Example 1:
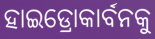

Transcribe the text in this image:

ହାଇଡ୍ରୋକାର୍ବନକୁ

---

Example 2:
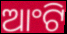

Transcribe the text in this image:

ଆଂଟି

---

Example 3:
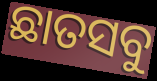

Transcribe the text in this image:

ଛାତସବୁ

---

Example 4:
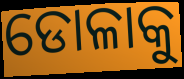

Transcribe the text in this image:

ଡୋଳାକୁ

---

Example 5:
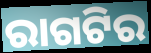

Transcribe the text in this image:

ରାଗଟିର